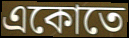
একোতে